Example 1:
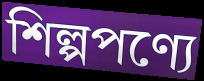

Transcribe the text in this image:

শিল্পপণ্যে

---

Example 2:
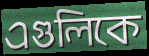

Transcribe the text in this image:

এগুলিকে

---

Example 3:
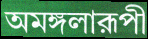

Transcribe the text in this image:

অমঙ্গলারূপী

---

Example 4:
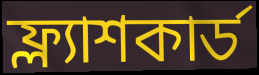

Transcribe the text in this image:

ফ্ল্যাশকার্ড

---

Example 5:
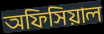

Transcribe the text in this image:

অফিসিয়াল